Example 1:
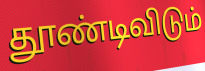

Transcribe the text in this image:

தூண்டிவிடும்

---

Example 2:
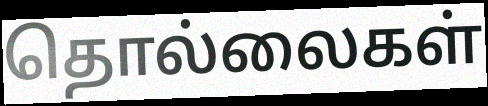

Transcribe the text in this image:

தொல்லைகள்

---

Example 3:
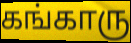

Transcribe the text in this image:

கங்காரு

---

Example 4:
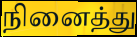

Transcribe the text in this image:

நினைத்து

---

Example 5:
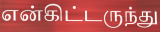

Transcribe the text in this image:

என்கிட்டருந்து